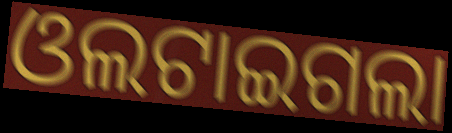
ଓଲଟାଇଗଲା